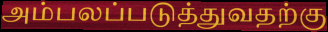
அம்பலப்படுத்துவதற்கு